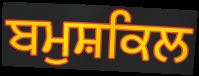
ਬਮੁਸ਼ਕਿਲ